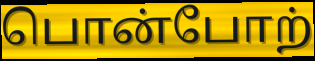
பொன்போற்